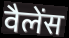
वैलेंस